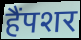
हैंपशर